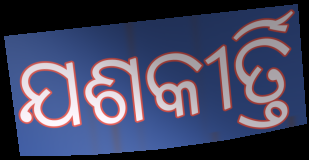
ଯଶକୀର୍ତ୍ତି